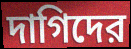
দাগিদের